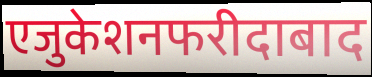
एजुकेशनफरीदाबाद